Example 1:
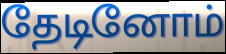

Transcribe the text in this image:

தேடினோம்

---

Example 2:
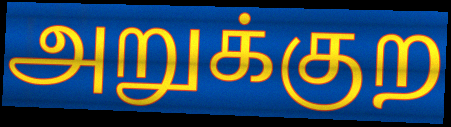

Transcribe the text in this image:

அறுக்குற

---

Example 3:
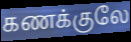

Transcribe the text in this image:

கணக்குலே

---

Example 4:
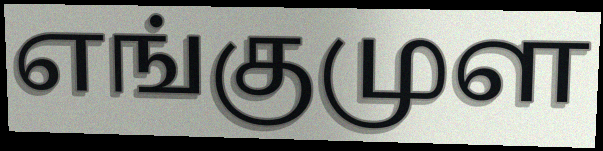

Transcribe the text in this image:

எங்குமுள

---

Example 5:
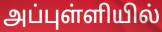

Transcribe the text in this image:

அப்புள்ளியில்